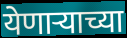
येणाऱ्याच्या